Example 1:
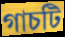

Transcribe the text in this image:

গাচটি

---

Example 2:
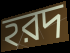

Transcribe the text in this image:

হরদ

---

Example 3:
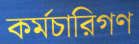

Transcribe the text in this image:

কর্মচারিগণ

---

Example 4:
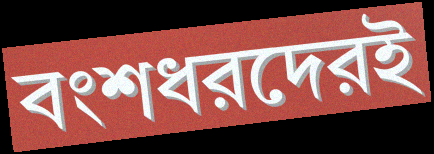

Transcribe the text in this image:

বংশধরদেরই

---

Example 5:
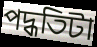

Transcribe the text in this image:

পদ্ধতিটা